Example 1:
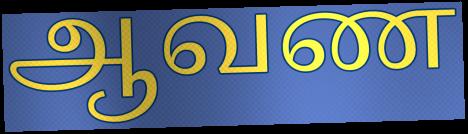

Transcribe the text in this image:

ஆவண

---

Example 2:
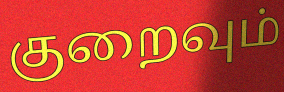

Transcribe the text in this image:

குறைவும்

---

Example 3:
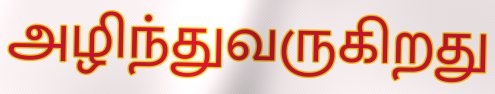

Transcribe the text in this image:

அழிந்துவருகிறது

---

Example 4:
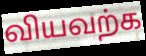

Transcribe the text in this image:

வியவற்க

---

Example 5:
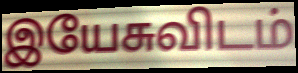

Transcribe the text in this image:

இயேசுவிடம்